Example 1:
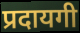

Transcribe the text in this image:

प्रदायगी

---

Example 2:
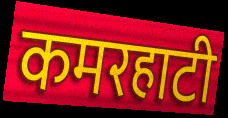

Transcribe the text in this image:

कमरहाटी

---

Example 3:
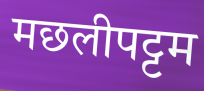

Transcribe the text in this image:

मछलीपट्टम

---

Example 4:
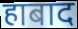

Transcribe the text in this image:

हाबाद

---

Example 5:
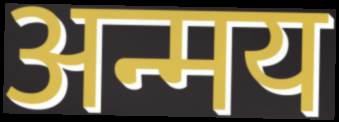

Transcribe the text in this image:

अन्मय